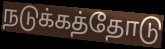
நடுக்கத்தோடு